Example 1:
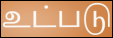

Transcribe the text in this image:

உட்படு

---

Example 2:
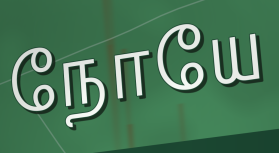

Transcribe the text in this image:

நோயே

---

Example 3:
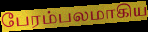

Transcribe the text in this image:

பேரம்பலமாகிய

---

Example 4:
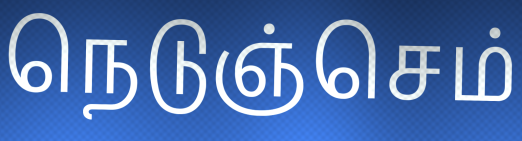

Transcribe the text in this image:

நெடுஞ்செம்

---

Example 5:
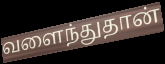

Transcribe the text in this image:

வளைந்துதான்